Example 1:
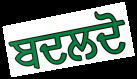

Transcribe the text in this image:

ਬਦਲਦੋ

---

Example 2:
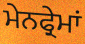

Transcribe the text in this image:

ਮੇਨਫ੍ਰੇਮਾਂ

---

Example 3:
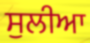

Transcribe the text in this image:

ਸੁਲੀਆ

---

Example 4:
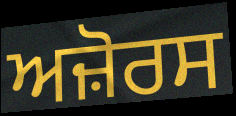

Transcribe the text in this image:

ਅਜ਼ੋਰਸ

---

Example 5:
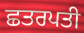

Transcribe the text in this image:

ਛਤਰਪਤੀ